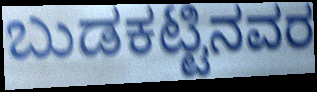
ಬುಡಕಟ್ಟಿನವರ